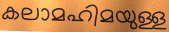
കലാമഹിമയുള്ള